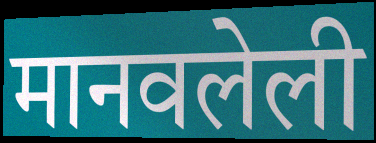
मानवलेली